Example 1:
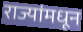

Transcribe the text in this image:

राज्यांमधून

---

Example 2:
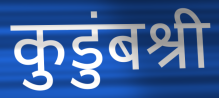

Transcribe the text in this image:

कुडुंबश्री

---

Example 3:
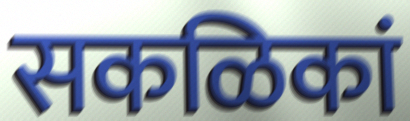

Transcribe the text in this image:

सकळिकां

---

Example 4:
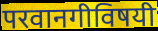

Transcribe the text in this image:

परवानगीविषयी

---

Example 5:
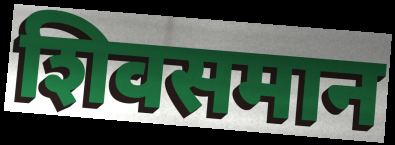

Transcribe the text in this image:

शिवसमान